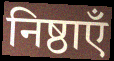
निष्ठाएँ